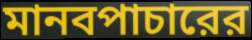
মানবপাচারের